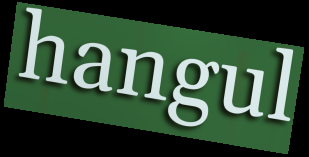
hangul